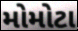
મોમોટા